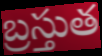
బ్రస్తుత